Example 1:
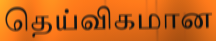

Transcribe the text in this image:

தெய்விகமான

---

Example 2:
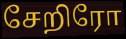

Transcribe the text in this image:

சேறிரோ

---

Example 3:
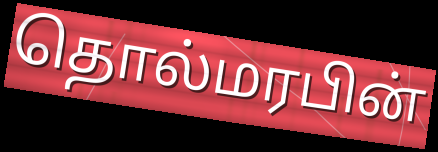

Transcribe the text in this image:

தொல்மரபின்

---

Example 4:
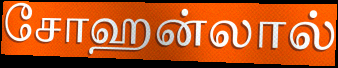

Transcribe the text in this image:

சோஹன்லால்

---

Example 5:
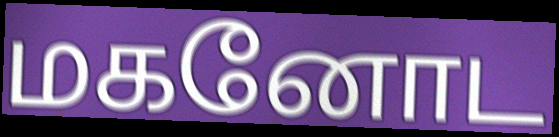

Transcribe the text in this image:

மகனோட